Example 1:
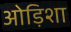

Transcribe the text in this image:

ओड़िशा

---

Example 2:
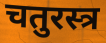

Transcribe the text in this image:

चतुरस्त्र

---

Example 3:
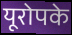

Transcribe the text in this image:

यूरोपके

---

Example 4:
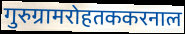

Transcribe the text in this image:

गुरुग्रामरोहतककरनाल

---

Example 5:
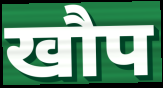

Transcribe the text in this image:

खौप